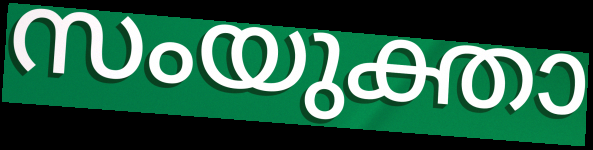
സംയുക്താ